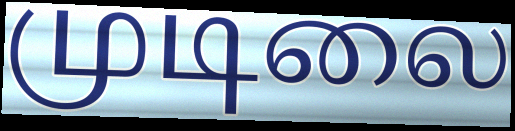
முடிலை